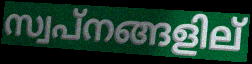
സ്വപ്നങ്ങളില്